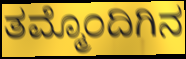
ತಮ್ಮೊಂದಿಗಿನ